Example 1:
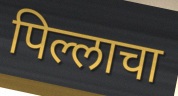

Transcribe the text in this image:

पिल्लाचा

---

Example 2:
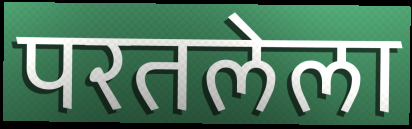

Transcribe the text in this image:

परतलेला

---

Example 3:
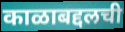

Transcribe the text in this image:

काळाबद्दलची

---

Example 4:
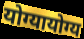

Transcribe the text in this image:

योग्यायोग्य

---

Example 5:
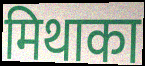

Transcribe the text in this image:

मिथाका